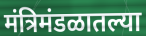
मंत्रिमंडळातल्या